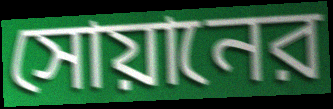
সোয়ানের